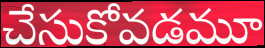
చేసుకోవడమూ